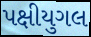
પક્ષીયુગલ